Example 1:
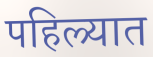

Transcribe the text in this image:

पहिल्यात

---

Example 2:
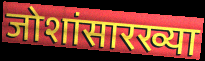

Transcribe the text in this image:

जोशांसारख्या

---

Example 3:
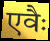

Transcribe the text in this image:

एवैः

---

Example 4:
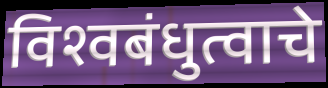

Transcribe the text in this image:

विश्वबंधुत्वाचे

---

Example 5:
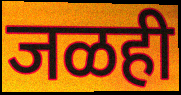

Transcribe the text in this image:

जळही